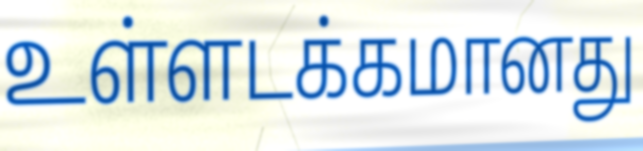
உள்ளடக்கமானது